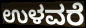
ಉಳವರೆ